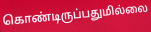
கொண்டிருப்பதுமில்லை